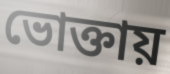
ভোক্তায়